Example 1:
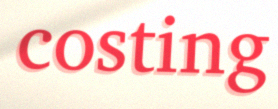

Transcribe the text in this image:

costing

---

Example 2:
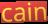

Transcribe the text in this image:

cain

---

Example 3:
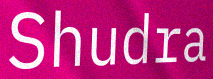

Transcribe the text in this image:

Shudra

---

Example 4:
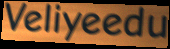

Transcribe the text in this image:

Veliyeedu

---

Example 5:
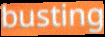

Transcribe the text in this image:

busting